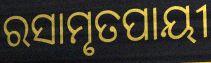
ରସାମୃତପାୟୀ